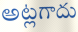
అట్లగాదు